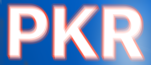
PKR